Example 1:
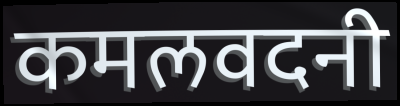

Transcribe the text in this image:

कमलवदनी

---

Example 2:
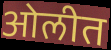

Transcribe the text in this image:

ओलीत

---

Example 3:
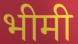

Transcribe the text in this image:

भीमी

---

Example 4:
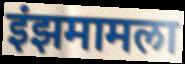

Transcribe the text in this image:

इंझमामला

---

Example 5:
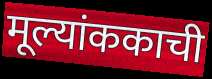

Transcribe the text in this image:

मूल्यांककाची